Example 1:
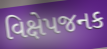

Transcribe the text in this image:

વિક્ષેપજનક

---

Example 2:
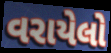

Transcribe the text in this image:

વરાયેલો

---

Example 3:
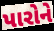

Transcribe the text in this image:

પારોને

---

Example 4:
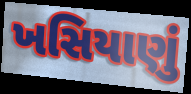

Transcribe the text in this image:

ખસિયાણું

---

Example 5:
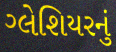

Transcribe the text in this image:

ગ્લેશિયરનું